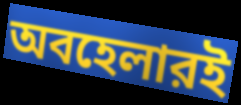
অবহেলারই